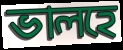
ভালহে